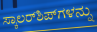
ಸ್ಕಾಲರ್‌ಶಿಪ್‌ಗಳನ್ನು